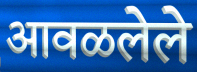
आवळलेले